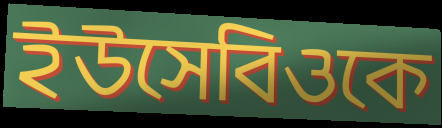
ইউসেবিওকে